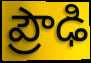
ప్రౌఢి